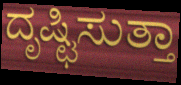
ದೃಷ್ಟಿಸುತ್ತಾ